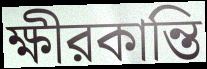
ক্ষীরকান্তি